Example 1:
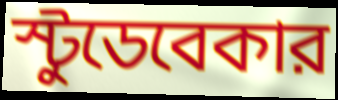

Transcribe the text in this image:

স্টুডেবেকার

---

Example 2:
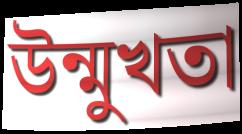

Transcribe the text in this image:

উন্মুখতা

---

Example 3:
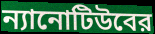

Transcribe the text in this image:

ন্যানোটিউবের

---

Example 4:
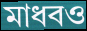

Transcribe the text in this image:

মাধবও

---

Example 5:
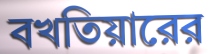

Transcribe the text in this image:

বখতিয়ারের